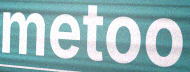
metoo